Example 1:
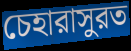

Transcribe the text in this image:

চেহারাসুরত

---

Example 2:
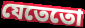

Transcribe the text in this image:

যেতেতো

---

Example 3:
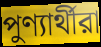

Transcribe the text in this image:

পুণ্যার্থীরা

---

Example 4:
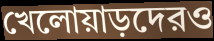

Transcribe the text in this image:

খেলোয়াড়দেরও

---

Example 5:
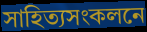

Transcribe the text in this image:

সাহিত্যসংকলনে